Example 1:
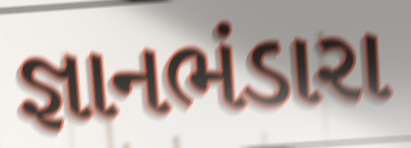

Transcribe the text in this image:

જ્ઞાનભંડારા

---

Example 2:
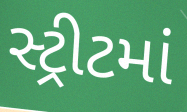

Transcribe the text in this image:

સ્ટ્રીટમાં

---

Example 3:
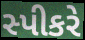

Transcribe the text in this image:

સ્પીકરે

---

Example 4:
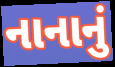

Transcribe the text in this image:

નાનાનું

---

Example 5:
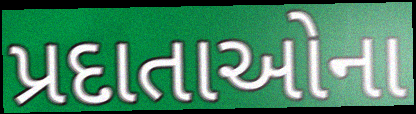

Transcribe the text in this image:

પ્રદાતાઓના